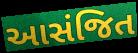
આસંજિત